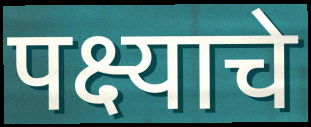
पक्ष्याचे